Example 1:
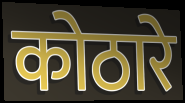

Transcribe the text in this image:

कोठारे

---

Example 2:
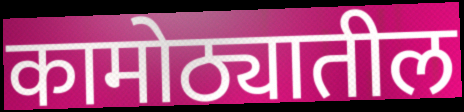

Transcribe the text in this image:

कामोठ्यातील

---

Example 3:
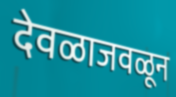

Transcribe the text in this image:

देवळाजवळून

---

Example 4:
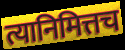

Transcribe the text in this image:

त्यानिमित्तच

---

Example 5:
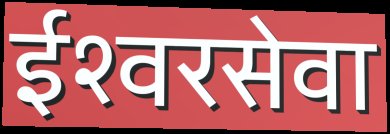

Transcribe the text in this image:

ईश्वरसेवा